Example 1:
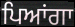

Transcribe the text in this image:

ਪਿਆਂਗਾ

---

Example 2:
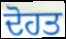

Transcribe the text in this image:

ਦੋਹਤ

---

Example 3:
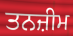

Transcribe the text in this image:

ਤਨਜ਼ੀਮ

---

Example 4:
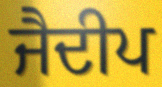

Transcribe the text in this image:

ਜੈਦੀਪ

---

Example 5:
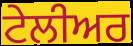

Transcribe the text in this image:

ਟੇਲੀਅਰ